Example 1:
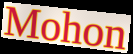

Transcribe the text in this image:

Mohon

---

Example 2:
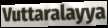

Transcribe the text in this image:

Vuttaralayya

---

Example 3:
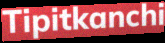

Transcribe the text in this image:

Tipitkanchi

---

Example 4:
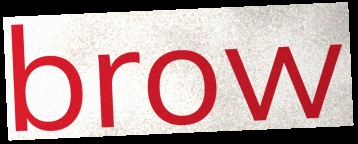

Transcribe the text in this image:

brow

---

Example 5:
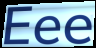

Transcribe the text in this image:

Eee